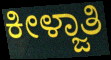
ಕೀಳ್ಜಾತಿ